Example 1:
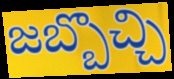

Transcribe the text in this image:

జబ్బొచ్చి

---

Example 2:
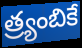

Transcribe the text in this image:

త్ర్యంబికే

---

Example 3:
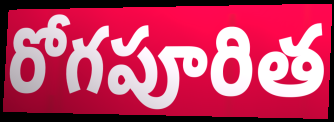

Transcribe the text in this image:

రోగపూరిత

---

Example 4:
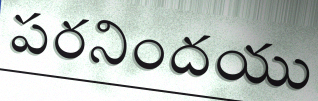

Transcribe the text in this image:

పరనిందయు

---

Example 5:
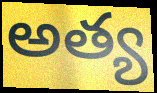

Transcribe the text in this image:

అత్య